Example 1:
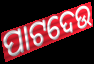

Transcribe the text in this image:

ପାଟଦେଉ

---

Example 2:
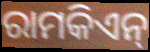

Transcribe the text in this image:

ରାମକିଏନ୍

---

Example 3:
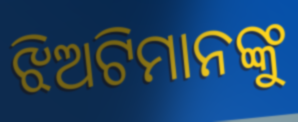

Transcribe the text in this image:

ଝିଅଟିମାନଙ୍କୁ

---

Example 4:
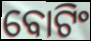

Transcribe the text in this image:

ବୋଟିଂ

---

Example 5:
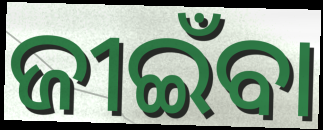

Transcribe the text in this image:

ଜୀଇଁବା